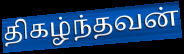
திகழ்ந்தவன்